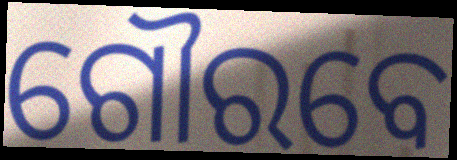
ଗୌରବେ